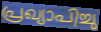
പ്രഖ്യാപിച്ചു